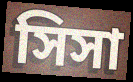
সিসা